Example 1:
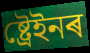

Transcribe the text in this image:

ষ্ট্ৰেইনৰ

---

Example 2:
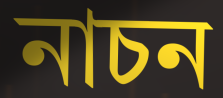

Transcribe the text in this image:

নাচন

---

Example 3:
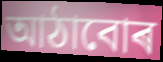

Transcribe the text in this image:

আঠাবোৰ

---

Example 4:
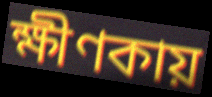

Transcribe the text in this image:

ক্ষীণকায়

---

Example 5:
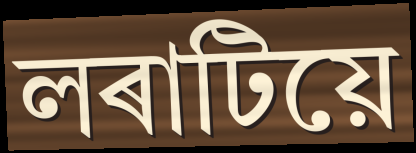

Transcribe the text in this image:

লৰাটিয়ে